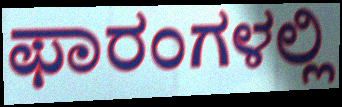
ಫಾರಂಗಳಲ್ಲಿ